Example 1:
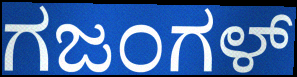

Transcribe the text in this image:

ಗಜಂಗಳ್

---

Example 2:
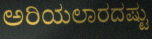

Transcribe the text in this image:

ಅರಿಯಲಾರದಷ್ಟು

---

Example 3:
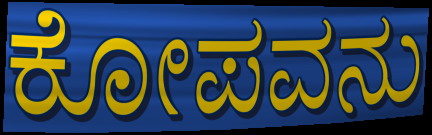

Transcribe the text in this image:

ಕೋಪವನು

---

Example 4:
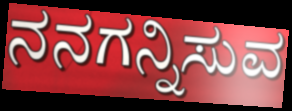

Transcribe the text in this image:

ನನಗನ್ನಿಸುವ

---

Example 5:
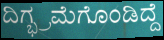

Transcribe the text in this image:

ದಿಗ್ಭ್ರಮೆಗೊಂಡಿದ್ದೆ